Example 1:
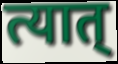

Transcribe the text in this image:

त्यात्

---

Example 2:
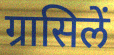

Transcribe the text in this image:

ग्रासिलें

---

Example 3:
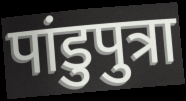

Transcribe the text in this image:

पांडुपुत्रा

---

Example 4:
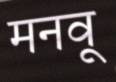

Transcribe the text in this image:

मनवू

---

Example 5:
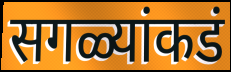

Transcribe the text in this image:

सगळ्यांकडं